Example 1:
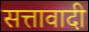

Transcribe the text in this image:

सत्तावादी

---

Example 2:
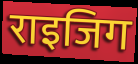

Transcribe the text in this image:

राइजिग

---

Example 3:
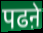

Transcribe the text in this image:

पढऩे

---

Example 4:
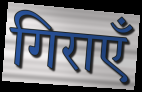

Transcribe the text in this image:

गिराएँ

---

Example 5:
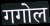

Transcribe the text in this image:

गगोल